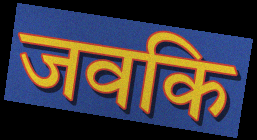
जवकि